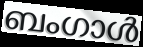
ബംഗാൾ